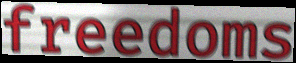
freedoms